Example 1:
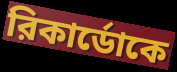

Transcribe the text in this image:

রিকার্ডোকে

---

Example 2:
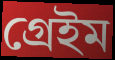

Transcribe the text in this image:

গ্রেইম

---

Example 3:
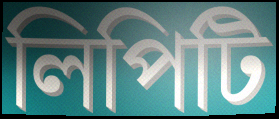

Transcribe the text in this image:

লিপিটি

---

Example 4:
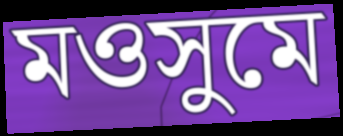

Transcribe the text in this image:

মওসুমে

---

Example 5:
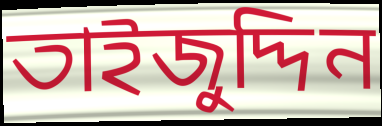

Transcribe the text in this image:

তাইজুদ্দিন